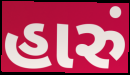
હારું